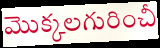
మొక్కలగురించీ